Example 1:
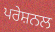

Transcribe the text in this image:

ਪਰੇਸ਼ਨਲ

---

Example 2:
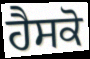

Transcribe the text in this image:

ਹੈਸਕੋ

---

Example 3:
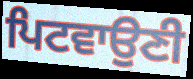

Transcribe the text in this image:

ਪਿਟਵਾਉਣੀ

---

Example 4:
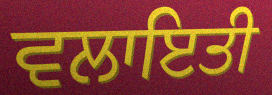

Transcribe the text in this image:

ਵਲਾਇਤੀ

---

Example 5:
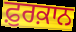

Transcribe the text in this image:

ਫ਼ੁਰਕ਼ਾਨ